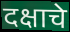
दक्षाचे